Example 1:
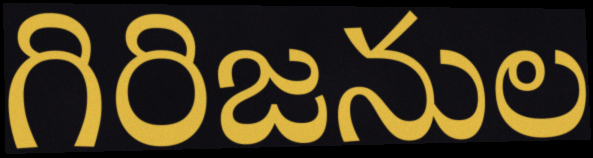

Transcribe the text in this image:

గిరిజనుల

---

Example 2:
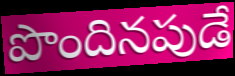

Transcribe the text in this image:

పొందినపుడే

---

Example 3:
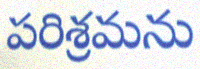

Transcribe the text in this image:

పరిశ్రమను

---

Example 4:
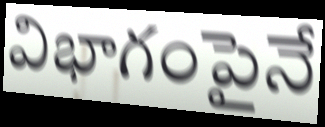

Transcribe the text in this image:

విభాగంపైనే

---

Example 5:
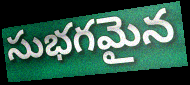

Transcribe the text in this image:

సుభగమైన